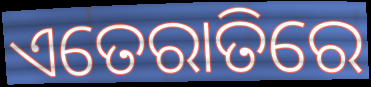
ଏତେରାତିରେ